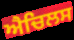
ਐਚਿਲਸ